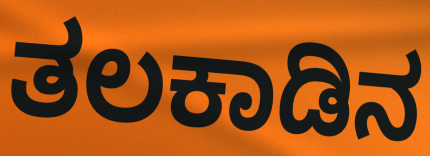
ತಲಕಾಡಿನ